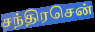
சந்திரசென்